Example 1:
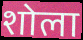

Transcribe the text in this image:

शोला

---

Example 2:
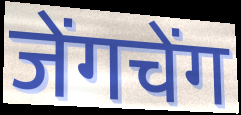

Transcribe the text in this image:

जेंगचेंग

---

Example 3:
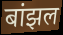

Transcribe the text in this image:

बांझल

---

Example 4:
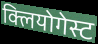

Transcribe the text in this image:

क्लियोगेस्ट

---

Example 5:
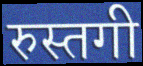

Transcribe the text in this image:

रुस्तगी